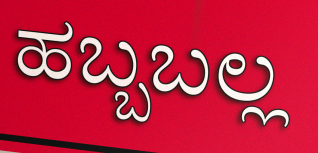
ಹಬ್ಬಬಲ್ಲ